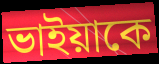
ভাইয়াকে